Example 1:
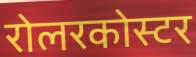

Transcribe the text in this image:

रोलरकोस्टर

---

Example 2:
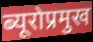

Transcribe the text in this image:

ब्यूरोप्रमुख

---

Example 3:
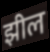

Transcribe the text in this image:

झील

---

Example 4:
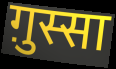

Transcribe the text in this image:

ग़ुस्सा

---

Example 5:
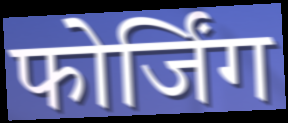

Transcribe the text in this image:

फोर्जिंग